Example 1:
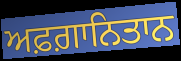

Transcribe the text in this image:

ਅਫ਼ਗ਼ਾਨਿਤਾਨ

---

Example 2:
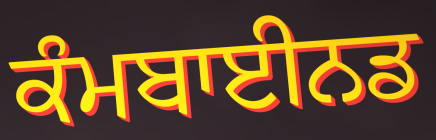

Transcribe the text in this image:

ਕੰਮਬਾਈਨਡ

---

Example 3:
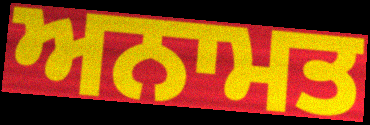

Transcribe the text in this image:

ਅਨਾਮਤ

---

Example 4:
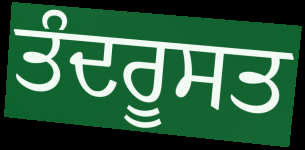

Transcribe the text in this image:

ਤੰਦਰੂਸਤ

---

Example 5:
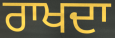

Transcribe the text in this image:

ਰਾਖਦਾ